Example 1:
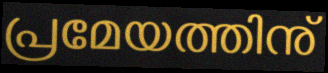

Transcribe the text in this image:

പ്രമേയത്തിനു്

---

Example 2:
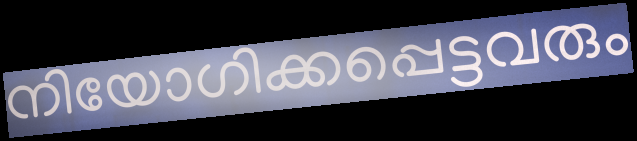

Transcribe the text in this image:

നിയോഗിക്കപ്പെട്ടവരും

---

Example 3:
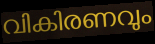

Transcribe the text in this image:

വികിരണവും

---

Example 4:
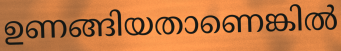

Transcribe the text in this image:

ഉണങ്ങിയതാണെങ്കിൽ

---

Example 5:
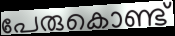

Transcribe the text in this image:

പേരുകൊണ്ട്